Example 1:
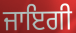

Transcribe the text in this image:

ਜਾਇਗੀ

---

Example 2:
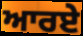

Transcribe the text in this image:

ਆਰਏ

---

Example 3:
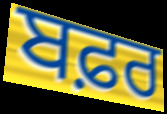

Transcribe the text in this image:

ਬਫ਼ਰ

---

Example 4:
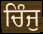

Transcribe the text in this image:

ਚਿੰਜੁ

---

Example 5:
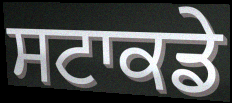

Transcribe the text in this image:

ਸਟਾਕਡੇ